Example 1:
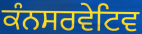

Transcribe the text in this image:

ਕੰਨਸਰਵੇਟਿਵ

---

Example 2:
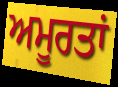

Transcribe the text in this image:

ਅਮੂਰਤਾਂ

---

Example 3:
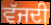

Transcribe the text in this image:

ਵੱਜਦੀ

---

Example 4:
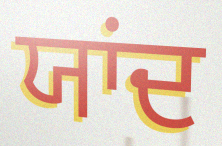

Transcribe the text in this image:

ਯਾਂਦ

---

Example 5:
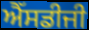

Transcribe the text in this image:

ਐੱਸਡੀਜੀ